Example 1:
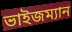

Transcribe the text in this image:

ভাইজম্যান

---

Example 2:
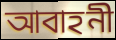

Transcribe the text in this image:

আবাহনী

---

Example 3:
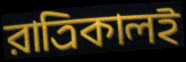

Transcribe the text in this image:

রাত্রিকালই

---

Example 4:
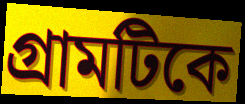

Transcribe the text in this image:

গ্রামটিকে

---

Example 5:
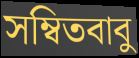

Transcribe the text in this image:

সম্বিতবাবু